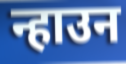
न्हाउन